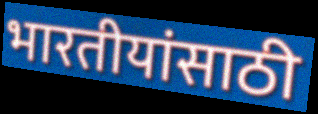
भारतीयांसाठी